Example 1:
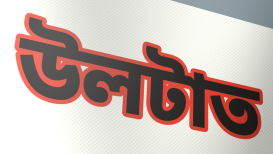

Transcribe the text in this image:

উলটাত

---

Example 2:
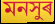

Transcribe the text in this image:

মনসুৰ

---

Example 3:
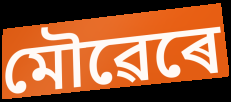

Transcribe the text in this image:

মৌৱেৰে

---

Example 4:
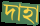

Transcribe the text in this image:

দাহা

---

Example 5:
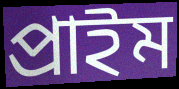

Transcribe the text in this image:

প্ৰাইম